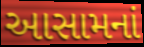
આસામનાં